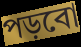
পড়বো